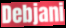
Debjani